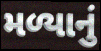
મળ્યાનું